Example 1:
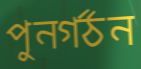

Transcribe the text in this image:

পুনর্গঠন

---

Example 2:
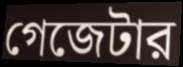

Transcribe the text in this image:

গেজেটার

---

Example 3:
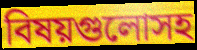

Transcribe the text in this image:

বিষয়গুলোসহ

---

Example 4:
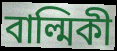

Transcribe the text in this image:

বাল্মিকী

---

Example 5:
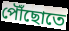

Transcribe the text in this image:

পৌঁছোতে